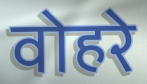
वोहरे